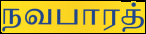
நவபாரத்